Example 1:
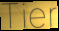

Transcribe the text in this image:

Tier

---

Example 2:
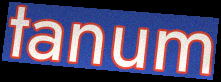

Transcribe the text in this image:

tanum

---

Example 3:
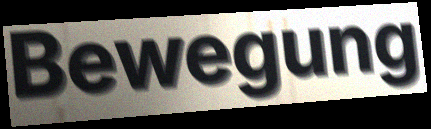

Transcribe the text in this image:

Bewegung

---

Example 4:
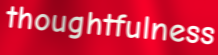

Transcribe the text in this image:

thoughtfulness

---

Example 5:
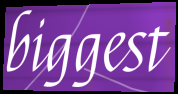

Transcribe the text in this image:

biggest